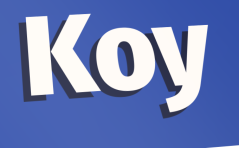
Koy